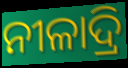
ନୀଳାଦ୍ରି